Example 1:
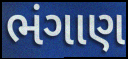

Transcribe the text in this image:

ભંગાણ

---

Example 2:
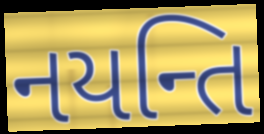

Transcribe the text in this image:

નયન્તિ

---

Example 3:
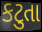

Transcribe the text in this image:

કટુતા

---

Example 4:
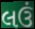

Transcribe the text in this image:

લઉં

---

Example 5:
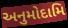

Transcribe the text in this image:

અનુમોદામિ